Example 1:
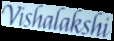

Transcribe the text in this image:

Vishalakshi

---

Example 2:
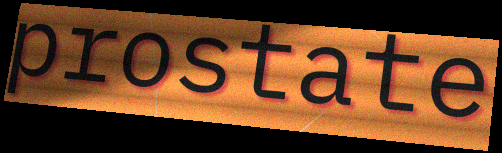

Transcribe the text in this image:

prostate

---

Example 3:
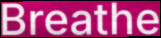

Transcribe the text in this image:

Breathe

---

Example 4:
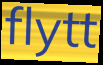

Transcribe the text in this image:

flytt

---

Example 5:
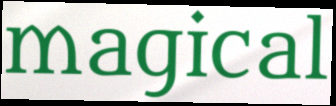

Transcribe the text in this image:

magical